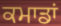
ਕਮਾਡਾਂ